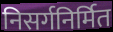
निसर्गनिर्मित